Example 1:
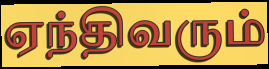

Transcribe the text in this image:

ஏந்திவரும்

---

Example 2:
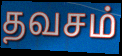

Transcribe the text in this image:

தவசம்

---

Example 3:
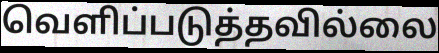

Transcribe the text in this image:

வெளிப்படுத்தவில்லை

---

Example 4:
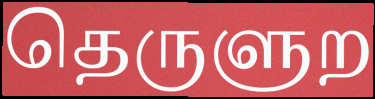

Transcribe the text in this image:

தெருளுற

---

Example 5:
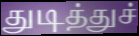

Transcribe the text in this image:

துடித்துச்